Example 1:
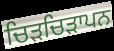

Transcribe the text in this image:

ਚਿੜਚਿੜਾਪਨ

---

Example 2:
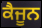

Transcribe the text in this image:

ਕੈਜੂਨ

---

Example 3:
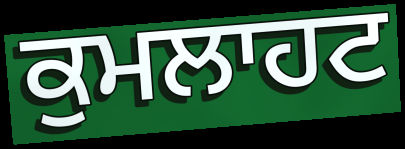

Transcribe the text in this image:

ਕੁਮਲਾਹਟ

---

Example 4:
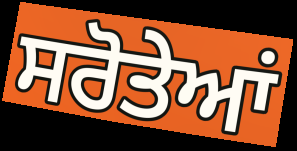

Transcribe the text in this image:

ਸਰੋਤੇਆਂ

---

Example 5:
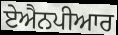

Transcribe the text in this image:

ਏਐਨਪੀਆਰ